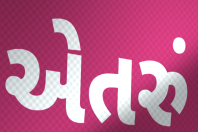
એતરું